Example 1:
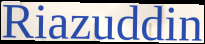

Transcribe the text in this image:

Riazuddin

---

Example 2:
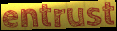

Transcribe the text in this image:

entrust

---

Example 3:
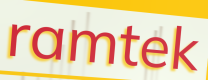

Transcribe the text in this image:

ramtek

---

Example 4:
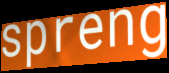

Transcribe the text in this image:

spreng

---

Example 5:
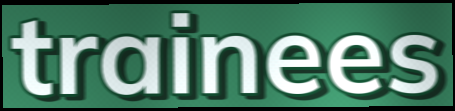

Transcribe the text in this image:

trainees